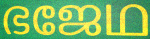
ഭജേഥ